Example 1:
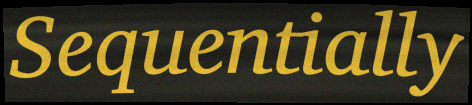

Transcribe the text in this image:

Sequentially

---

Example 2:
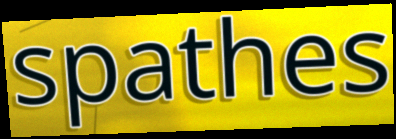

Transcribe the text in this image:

spathes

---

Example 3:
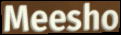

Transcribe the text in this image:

Meesho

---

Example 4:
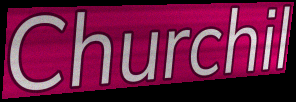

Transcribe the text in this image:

Churchil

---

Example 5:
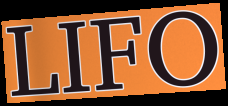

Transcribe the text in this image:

LIFO